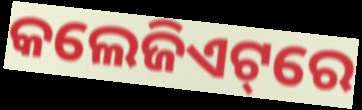
କଲେଜିଏଟ୍‌ରେ